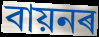
বায়নৰ